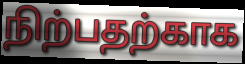
நிற்பதற்காக